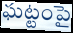
ఘట్టంపై